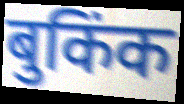
बुकिंक